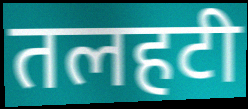
तलहटी